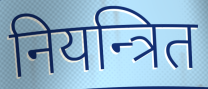
नियन्त्रित